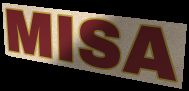
MISA